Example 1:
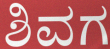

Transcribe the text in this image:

ಶಿವಗ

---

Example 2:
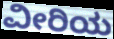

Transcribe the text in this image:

ವೀರಿಯ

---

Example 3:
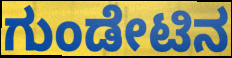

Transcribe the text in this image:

ಗುಂಡೇಟಿನ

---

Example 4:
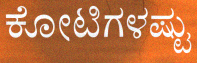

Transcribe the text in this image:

ಕೋಟಿಗಳಷ್ಟು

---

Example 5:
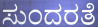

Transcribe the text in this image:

ಸುಂದರತೆ